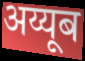
अय्यूब